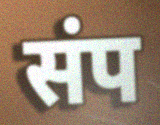
संप